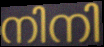
നിനി